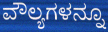
ವೌಲ್ಯಗಳನ್ನೂ